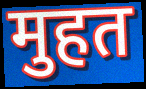
मुहत